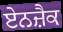
ਏਨਜ਼ੈਕ